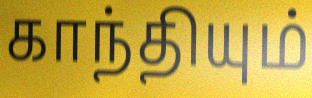
காந்தியும்